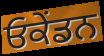
ਓਕੇਂਡਨ